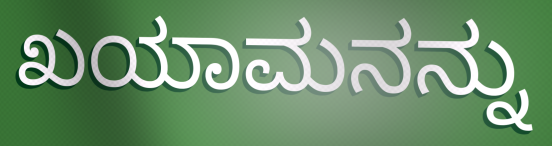
ಖಯಾಮನನ್ನು